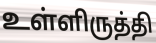
உள்ளிருத்தி